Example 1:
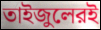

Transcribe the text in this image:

তাইজুলেরই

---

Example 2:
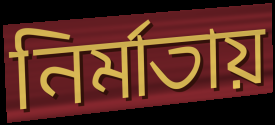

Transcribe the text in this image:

নির্মাতায়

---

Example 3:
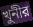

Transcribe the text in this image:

খুনীর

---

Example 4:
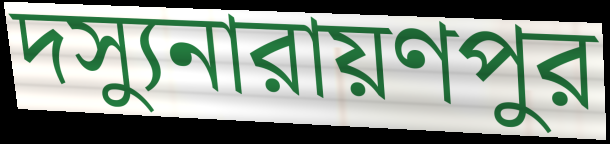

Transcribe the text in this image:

দস্যুনারায়ণপুর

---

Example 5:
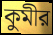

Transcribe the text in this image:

কুমীর